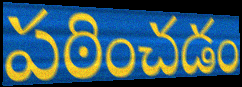
పఠించడం